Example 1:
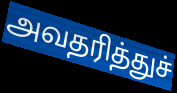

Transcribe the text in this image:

அவதரித்துச்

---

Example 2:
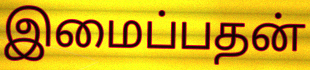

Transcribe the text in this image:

இமைப்பதன்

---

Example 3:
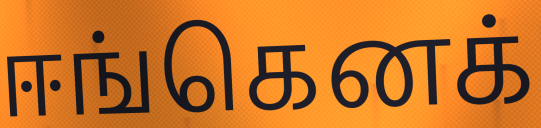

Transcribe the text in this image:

ஈங்கெனக்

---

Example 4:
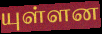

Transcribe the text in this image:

யுள்ளன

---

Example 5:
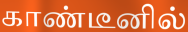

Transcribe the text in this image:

காண்டீனில்